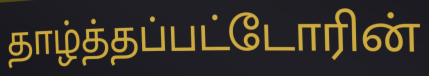
தாழ்த்தப்பட்டோரின்